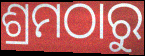
ଶ୍ରମଠାରୁ